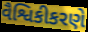
વૈશ્વિકીકરણે